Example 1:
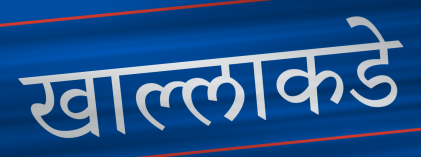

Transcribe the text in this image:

खाल्लाकडे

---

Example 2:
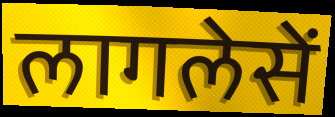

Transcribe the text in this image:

लागलेसें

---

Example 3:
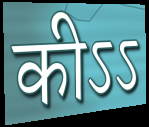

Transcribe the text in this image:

कीऽऽ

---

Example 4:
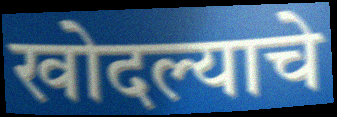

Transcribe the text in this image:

खोदल्याचे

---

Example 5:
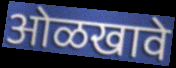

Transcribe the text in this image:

ओळखावे